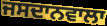
ਜਸਦਾਨਵਾਲਾ